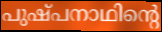
പുഷ്പനാഥിന്റെ